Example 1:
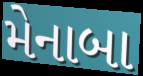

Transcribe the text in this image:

મેનાબા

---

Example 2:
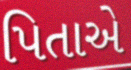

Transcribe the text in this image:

પિતાએ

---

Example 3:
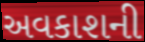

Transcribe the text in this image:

અવકાશની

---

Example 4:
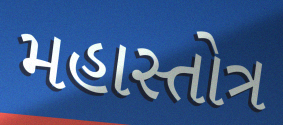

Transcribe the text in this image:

મહાસ્તોત્ર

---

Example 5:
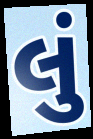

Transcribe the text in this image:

લું